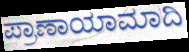
ಪ್ರಾಣಾಯಾಮಾದಿ